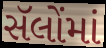
સૅલોંમાં